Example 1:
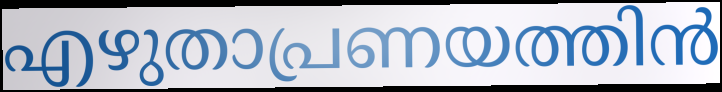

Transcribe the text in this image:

എഴുതാപ്രണയത്തിൻ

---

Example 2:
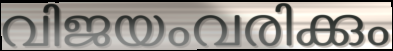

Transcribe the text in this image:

വിജയംവരിക്കും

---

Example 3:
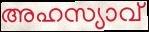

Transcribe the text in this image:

അഹസ്യാവ്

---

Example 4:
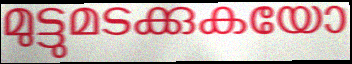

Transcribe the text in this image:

മുട്ടുമടക്കുകയോ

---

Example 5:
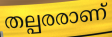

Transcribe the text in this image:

തല്പരരാണ്